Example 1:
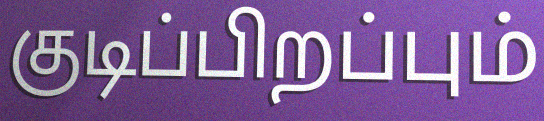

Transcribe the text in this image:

குடிப்பிறப்பும்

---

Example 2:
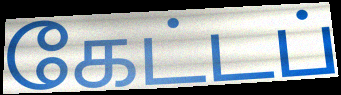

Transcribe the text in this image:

கேட்டப்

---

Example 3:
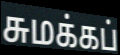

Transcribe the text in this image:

சுமக்கப்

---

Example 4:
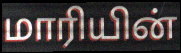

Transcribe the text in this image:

மாரியின்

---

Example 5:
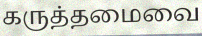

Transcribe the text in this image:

கருத்தமைவை